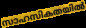
സാഹസികതയിൽ